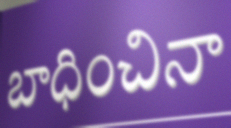
బాధించినా